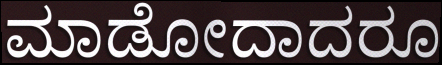
ಮಾಡೋದಾದರೂ